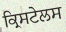
ਕ੍ਰਿਸਟੇਲਸ